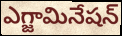
ఎగ్జామినేషన్